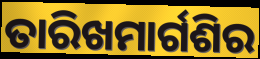
ତାରିଖମାର୍ଗଶିର